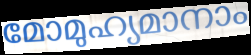
മോമുഹ്യമാനാം